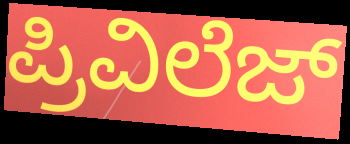
ಪ್ರಿವಿಲೆಜ್